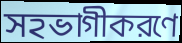
সহভাগীকরণে